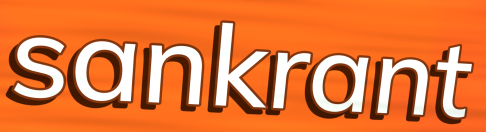
sankrant